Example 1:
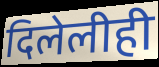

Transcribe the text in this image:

दिलेलीही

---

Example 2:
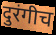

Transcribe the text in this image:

दुरंगीच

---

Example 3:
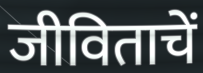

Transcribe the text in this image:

जीविताचें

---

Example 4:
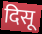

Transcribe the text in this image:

दिसू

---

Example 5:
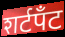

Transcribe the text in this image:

शर्टपॅंट